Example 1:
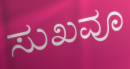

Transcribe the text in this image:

ಸುಖವೂ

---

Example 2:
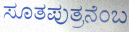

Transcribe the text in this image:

ಸೂತಪುತ್ರನೆಂಬ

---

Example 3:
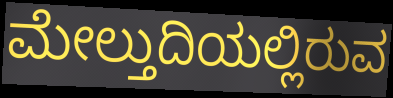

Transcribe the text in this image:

ಮೇಲ್ತುದಿಯಲ್ಲಿರುವ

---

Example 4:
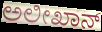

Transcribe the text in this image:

ಅಲೀಖಾನ್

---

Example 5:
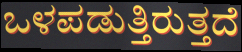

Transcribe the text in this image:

ಒಳಪಡುತ್ತಿರುತ್ತದೆ